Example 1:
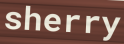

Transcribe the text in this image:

sherry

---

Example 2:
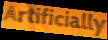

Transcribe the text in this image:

Artificially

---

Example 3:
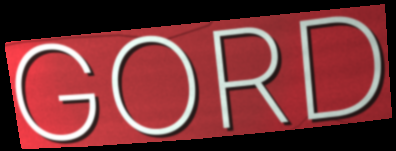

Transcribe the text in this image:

GORD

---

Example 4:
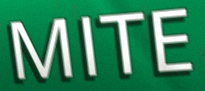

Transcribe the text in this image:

MITE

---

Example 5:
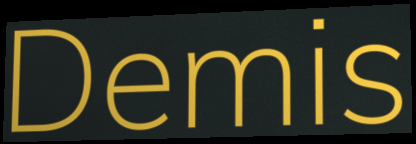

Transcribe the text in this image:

Demis